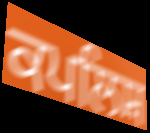
ਕਪਲਿਸ਼